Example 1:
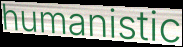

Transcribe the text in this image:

humanistic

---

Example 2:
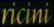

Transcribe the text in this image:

ricini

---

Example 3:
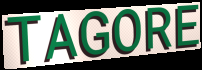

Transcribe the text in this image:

TAGORE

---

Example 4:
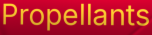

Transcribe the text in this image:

Propellants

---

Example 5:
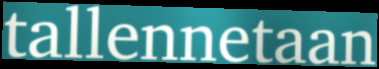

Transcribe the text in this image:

tallennetaan